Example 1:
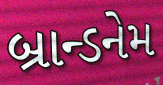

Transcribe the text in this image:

બ્રાન્ડનેમ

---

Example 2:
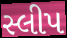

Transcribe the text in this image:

સ્લીપ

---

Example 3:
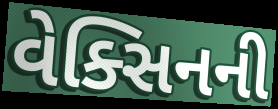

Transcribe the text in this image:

વેક્સિનની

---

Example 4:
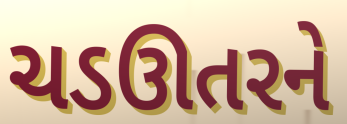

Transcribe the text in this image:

ચડઊતરને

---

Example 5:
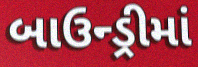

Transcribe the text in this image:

બાઉન્ડ્રીમાં